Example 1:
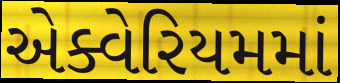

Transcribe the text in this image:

એક્વેરિયમમાં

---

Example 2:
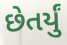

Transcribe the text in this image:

છેતર્યું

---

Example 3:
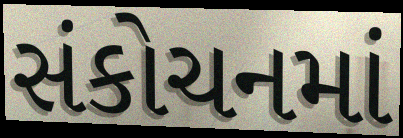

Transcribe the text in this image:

સંકોચનમાં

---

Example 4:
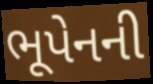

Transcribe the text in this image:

ભૂપેનની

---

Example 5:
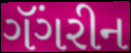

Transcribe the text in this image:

ગૅંગરીન